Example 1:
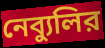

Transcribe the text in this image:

নেব্যুলির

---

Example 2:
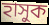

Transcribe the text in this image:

হাসুক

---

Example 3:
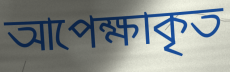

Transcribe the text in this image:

আপেক্ষাকৃত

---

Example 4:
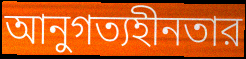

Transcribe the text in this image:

আনুগত্যহীনতার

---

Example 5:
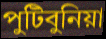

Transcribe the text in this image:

পুটিবুনিয়া